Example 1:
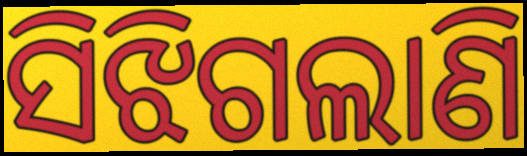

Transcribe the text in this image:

ସିଝିଗଲାଣି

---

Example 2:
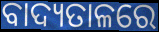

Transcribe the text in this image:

ବାଦ୍ୟତାଳରେ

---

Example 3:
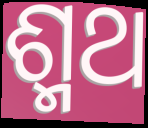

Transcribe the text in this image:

ଶ୍ମଥ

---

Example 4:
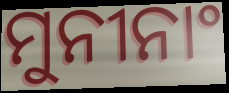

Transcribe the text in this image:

ମୁନୀନାଂ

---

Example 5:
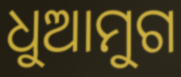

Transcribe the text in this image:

ଧୁଆମୁଗ